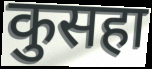
कुसहा